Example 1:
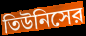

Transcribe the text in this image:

তিউনিসের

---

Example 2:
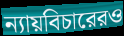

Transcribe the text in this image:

ন্যায়বিচারেরও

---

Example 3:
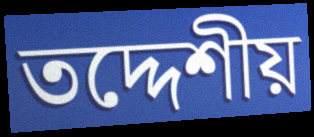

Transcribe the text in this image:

তদ্দেশীয়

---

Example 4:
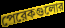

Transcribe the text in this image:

পেরেকগুলোর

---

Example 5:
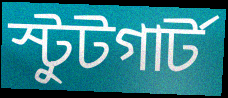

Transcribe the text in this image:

স্টুটগার্ট